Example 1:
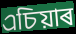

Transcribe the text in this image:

এচিয়াৰ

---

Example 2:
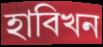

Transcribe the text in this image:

হাবিখন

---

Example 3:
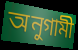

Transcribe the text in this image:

অনুগামী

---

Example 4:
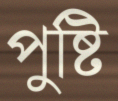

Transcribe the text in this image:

পুষ্টি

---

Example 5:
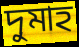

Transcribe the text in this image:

দুমাহ